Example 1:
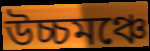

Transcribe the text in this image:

উচ্চমঞ্চে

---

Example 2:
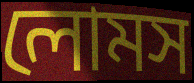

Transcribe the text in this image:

লোমস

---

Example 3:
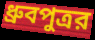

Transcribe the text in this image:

ধ্রুবপুত্রর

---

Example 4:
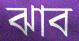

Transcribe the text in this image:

ঝাব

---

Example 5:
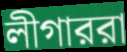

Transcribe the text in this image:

লীগাররা